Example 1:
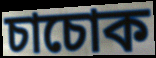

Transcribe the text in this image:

চাচোক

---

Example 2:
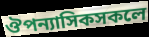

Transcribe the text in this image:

ঔপন্যাসিকসকলে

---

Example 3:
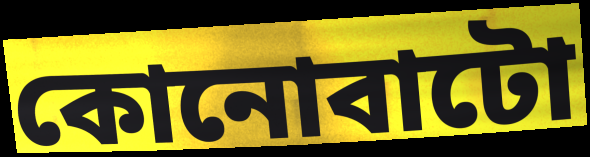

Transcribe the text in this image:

কোনোবাটো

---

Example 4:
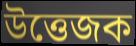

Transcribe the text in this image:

উত্তেজক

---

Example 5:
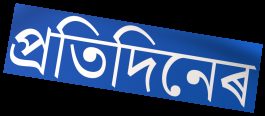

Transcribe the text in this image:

প্ৰতিদিনেৰ